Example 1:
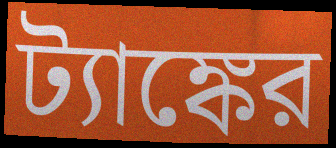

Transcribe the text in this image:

ট্যাঙ্কের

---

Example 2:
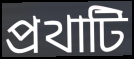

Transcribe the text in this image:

প্রথাটি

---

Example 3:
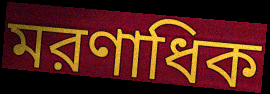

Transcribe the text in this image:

মরণাধিক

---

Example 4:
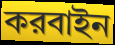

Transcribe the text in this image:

করবাইন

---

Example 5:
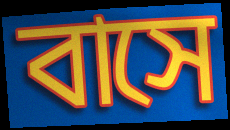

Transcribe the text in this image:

বাসে